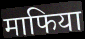
माफिया